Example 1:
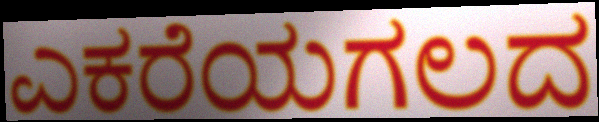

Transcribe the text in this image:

ಎಕರೆಯಗಲದ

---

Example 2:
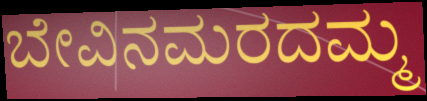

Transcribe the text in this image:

ಬೇವಿನಮರದಮ್ಮ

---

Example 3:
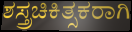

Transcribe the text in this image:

ಶಸ್ತ್ರಚಿಕಿತ್ಸಕರಾಗಿ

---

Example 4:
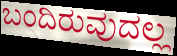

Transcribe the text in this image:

ಬಂದಿರುವುದಲ್ಲ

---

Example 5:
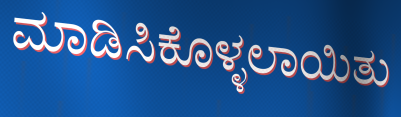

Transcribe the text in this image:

ಮಾಡಿಸಿಕೊಳ್ಳಲಾಯಿತು